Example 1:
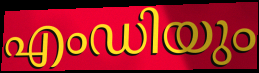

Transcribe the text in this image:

എംഡിയും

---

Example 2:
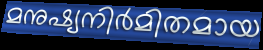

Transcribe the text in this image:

മനുഷ്യനിർമിതമായ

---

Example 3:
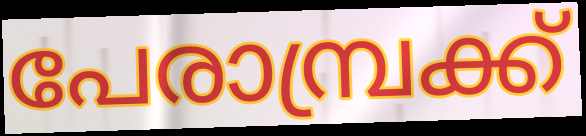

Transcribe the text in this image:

പേരാമ്പ്രക്ക്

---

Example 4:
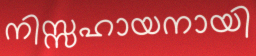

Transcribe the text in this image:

നിസ്സഹായനായി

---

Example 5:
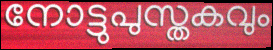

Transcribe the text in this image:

നോട്ടുപുസ്തകവും